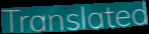
Translated